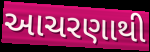
આચરણાથી